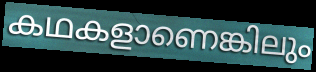
കഥകളാണെങ്കിലും